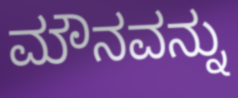
ಮೌನವನ್ನು